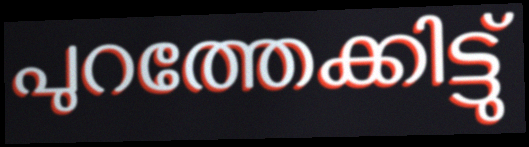
പുറത്തേക്കിട്ടു്